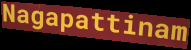
Nagapattinam